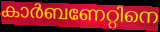
കാർബണേറ്റിനെ